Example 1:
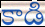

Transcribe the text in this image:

కాడి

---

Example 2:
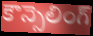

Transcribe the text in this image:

కౌన్సెలింగ్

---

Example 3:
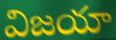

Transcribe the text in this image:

విజయా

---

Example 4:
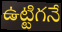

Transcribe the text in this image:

ఉట్టిగనే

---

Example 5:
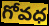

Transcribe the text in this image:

గోవధ